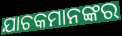
ଯାଚକମାନଙ୍କର